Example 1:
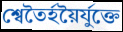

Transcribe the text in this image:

শ্বেতৈর্হয়ৈর্যুক্তে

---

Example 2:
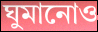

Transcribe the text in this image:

ঘুমানোও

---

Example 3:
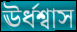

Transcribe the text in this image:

ঊর্ধশ্বাস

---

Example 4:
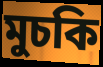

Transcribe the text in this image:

মুচকি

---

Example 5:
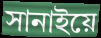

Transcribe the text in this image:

সানাইয়ে